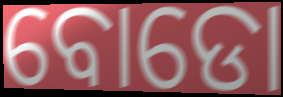
ବୋଡୋ